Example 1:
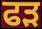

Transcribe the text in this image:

ਫੜ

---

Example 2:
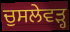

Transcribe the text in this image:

ਚੁਸਲੇਵੜ੍ਹ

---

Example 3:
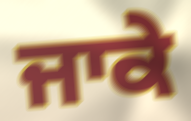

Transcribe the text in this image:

ਜਾਕੇ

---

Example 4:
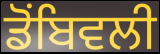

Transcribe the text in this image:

ਡੋਂਬਿਵਲੀ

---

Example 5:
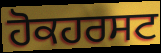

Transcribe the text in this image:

ਹੋਕਹਰਸਟ